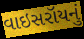
વાઇસરૉયનું